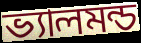
ভ্যালমন্ড